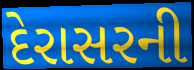
દેરાસરની